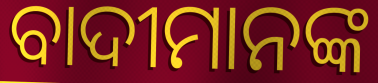
ବାଦୀମାନଙ୍କ